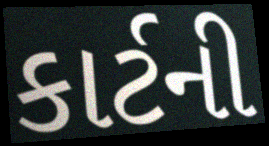
કાર્ટની